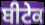
ਬੀਟੇਕ